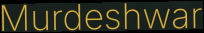
Murdeshwar